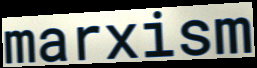
marxism